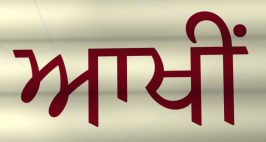
ਆਖੀਂ